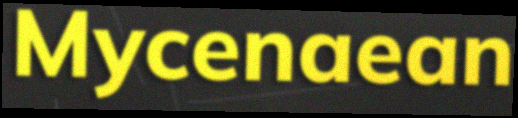
Mycenaean